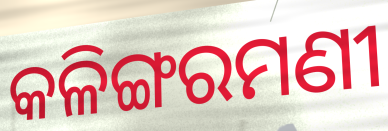
କଳିଙ୍ଗରମଣୀ